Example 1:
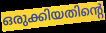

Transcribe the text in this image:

ഒരുക്കിയതിന്റെ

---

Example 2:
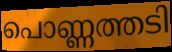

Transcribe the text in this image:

പൊണ്ണത്തടി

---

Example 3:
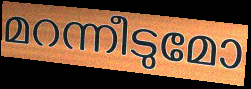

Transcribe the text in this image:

മറന്നീടുമോ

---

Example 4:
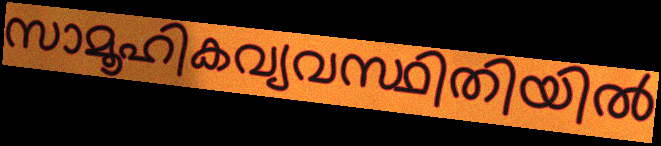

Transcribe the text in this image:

സാമൂഹികവ്യവസ്ഥിതിയിൽ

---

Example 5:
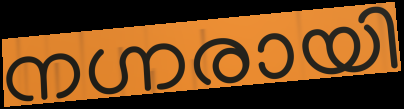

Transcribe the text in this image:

നഗ്നരായി